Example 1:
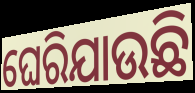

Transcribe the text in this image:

ଘେରିଯାଉଛି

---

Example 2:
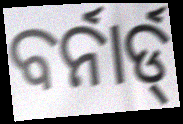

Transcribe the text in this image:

ବର୍ନାର୍ଡ୍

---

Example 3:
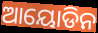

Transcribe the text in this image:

ଆୟୋଡିନ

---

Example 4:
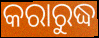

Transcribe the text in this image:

କରାରୁଦ୍ଧ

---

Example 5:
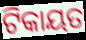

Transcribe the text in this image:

ଟିକାୟତ